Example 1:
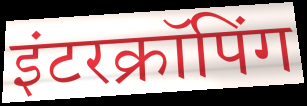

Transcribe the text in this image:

इंटरक्रॉपिंग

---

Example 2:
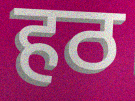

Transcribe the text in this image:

हठ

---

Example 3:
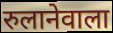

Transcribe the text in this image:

रुलानेवाला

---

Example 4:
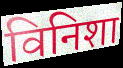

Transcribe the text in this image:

विनिशा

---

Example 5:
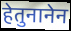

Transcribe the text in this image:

हेतुनानेन